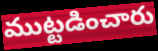
ముట్టడించారు